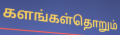
களங்கள்தொறும்